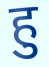
हु